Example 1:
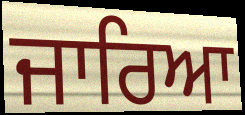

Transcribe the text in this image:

ਜਾਰਿਆ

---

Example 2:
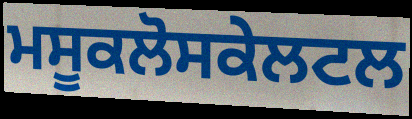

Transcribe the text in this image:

ਮਸੂਕਲੋਸਕੇਲਟਲ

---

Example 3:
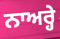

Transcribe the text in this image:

ਨਾਅਰ੍ਹੇ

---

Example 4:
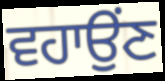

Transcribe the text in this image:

ਵਹਾਉਂਣ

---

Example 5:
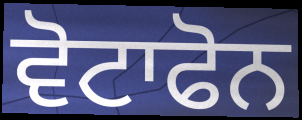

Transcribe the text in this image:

ਵੋਟਾਫੋਨ